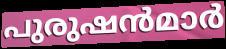
പുരുഷൻമാർ